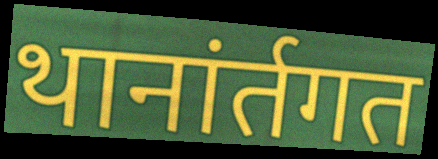
थानांर्तगत